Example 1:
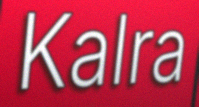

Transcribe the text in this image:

Kalra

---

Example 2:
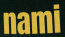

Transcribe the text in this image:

nami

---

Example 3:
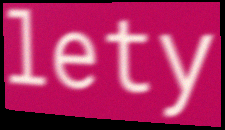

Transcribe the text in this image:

lety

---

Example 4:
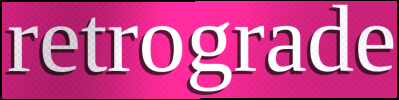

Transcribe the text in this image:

retrograde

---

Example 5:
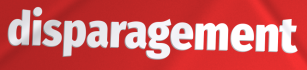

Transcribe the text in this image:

disparagement